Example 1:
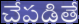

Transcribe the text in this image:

చేపడితే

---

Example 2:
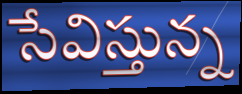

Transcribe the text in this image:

సేవిస్తున్న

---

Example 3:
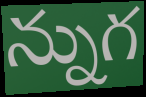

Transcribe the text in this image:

న్నుగ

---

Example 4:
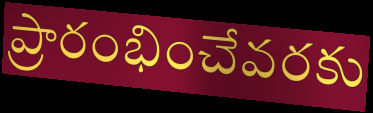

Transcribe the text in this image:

ప్రారంభించేవరకు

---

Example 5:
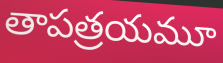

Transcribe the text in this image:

తాపత్రయమూ